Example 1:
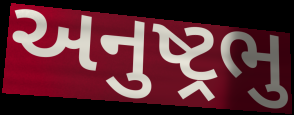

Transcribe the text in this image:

અનુષ્ટ્રભુ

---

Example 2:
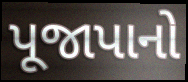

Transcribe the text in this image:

પૂજાપાનો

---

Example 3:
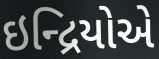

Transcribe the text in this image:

ઇન્દ્રિયોએ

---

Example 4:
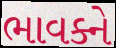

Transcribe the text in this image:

ભાવક્ને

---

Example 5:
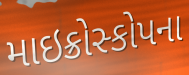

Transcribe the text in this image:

માઇક્રોસ્કોપના